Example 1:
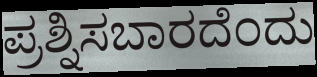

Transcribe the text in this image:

ಪ್ರಶ್ನಿಸಬಾರದೆಂದು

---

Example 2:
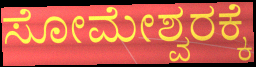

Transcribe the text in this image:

ಸೋಮೇಶ್ವರಕ್ಕೆ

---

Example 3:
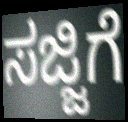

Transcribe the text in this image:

ಸಜ್ಜಿಗೆ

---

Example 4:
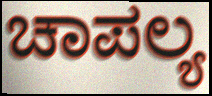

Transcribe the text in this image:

ಚಾಪಲ್ಯ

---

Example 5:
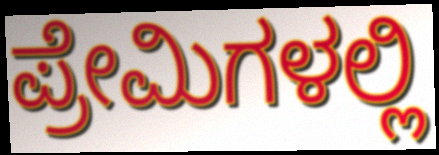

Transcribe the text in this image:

ಪ್ರೇಮಿಗಳಲ್ಲಿ